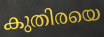
കുതിരയെ